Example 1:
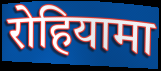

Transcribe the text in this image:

रोहियामा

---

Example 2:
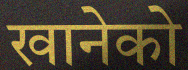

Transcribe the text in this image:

खानेको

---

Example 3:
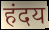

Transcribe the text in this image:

हंदय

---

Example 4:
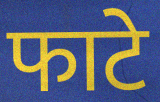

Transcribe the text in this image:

फाटे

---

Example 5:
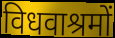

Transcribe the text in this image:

विधवाश्रमों